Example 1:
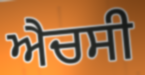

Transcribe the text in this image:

ਐਚਸੀ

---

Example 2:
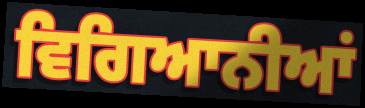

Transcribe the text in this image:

ਵਿਗਿਆਨੀਆਂ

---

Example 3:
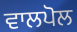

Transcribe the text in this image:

ਵਾਲਪੋਲ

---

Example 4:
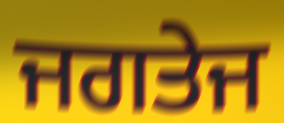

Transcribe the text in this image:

ਜਗਤੇਜ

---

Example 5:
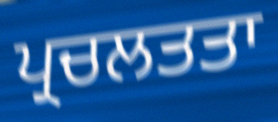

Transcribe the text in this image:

ਪ੍ਰਚਲਤਤਾ